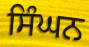
ਸਿੰਘਨ